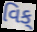
વિક્